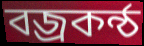
বজ্রকন্ঠ